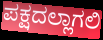
ಪಕ್ಷದಲ್ಲಾಗಲಿ